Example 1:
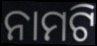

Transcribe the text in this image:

ନାମଟି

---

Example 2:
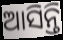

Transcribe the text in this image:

ଆସିନ୍ତି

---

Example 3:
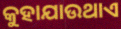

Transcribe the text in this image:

କୁହାଯାଉଥାଏ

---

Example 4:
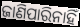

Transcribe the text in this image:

ଜାଣିପାରିନାହିଁ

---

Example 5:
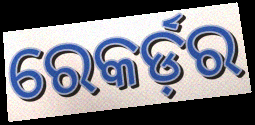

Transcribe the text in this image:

ରେକର୍ଡ଼ର